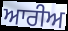
ਆਰੀਅ